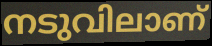
നടുവിലാണ്